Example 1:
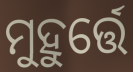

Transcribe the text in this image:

ମୁହୁର୍ତ୍ତେ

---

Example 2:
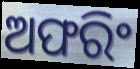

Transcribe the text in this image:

ଅଫରିଂ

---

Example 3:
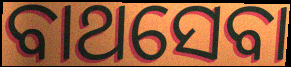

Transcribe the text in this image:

ବାଥସେବା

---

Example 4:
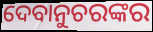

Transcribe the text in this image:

ଦେବାନୁଚରଙ୍କର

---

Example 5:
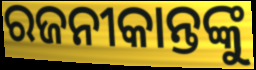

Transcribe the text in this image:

ରଜନୀକାନ୍ତଙ୍କୁ